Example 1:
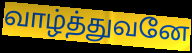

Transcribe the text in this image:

வாழ்த்துவனே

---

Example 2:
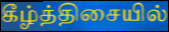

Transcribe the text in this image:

கீழ்த்திசையில்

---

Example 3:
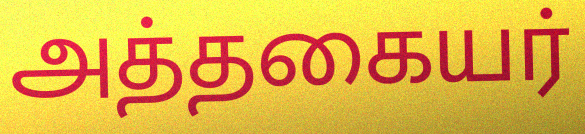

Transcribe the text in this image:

அத்தகையர்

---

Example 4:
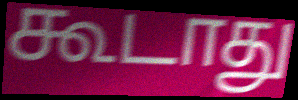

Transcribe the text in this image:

கூடாது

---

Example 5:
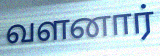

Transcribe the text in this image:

வளனார்